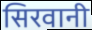
सिरवानी